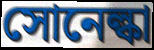
সোনেল্কা